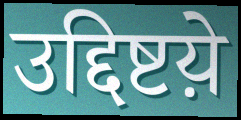
उद्दिष्टय़े